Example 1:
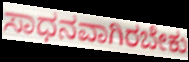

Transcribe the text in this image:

ಸಾಧನವಾಗಿರಬೇಕು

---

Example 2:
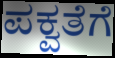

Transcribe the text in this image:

ಪಕ್ವತೆಗೆ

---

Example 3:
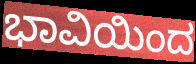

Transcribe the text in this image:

ಭಾವಿಯಿಂದ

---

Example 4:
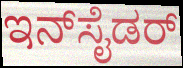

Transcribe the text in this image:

ಇನ್‌ಸೈಡರ್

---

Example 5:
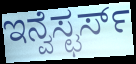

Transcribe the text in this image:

ಇನ್ವೆಸ್ಟರ್ಸ್